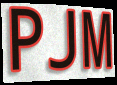
PJM